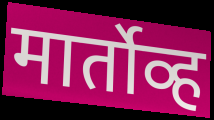
मार्तोव्ह